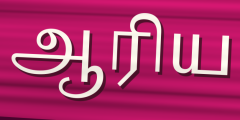
ஆரிய